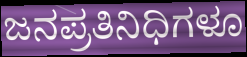
ಜನಪ್ರತಿನಿಧಿಗಳೂ